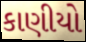
કાણીયો